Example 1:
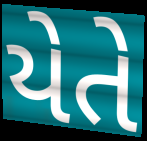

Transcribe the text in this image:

યેતે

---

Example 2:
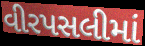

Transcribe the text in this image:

વીરપસલીમાં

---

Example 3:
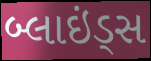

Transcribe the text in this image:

બ્લાઇંડ્સ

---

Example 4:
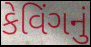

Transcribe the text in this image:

કેવિંગનું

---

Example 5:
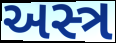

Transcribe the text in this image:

અસ્ત્ર